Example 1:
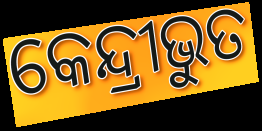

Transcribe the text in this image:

କେନ୍ଦ୍ରୀଭୁତ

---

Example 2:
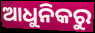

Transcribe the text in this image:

ଆଧୁନିକରୁ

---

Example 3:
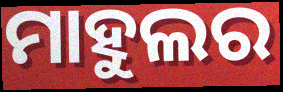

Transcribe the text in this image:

ମାହୁଲର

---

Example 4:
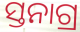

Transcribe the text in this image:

ସ୍ତନାଗ୍ର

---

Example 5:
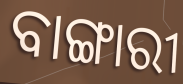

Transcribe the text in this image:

ବାଙ୍ଗାରୀ